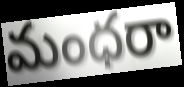
మంధరా